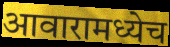
आवारामध्येच